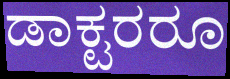
ಡಾಕ್ಟರರೂ